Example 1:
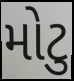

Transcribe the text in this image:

મોટુ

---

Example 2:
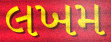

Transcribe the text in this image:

લખમ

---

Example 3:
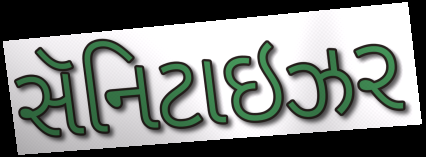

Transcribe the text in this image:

સૅનિટાઇઝર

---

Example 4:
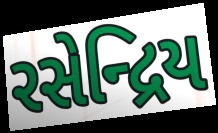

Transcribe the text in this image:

રસેન્દ્રિય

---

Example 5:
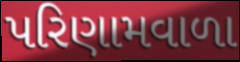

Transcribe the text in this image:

પરિણામવાળા